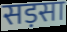
सड़सा